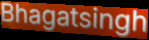
Bhagatsingh